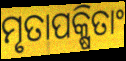
ମୃତାପକ୍ଷିତାଂ